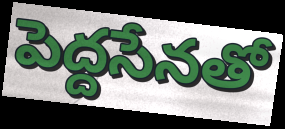
పెద్దసేనతో